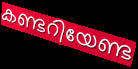
കണ്ടറിയേണ്ട